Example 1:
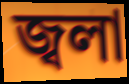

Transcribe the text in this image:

জ্বলা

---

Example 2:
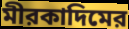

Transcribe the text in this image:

মীরকাদিমের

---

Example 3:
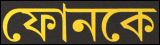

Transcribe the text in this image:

ফোনকে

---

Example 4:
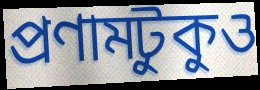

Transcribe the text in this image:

প্রণামটুকুও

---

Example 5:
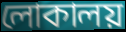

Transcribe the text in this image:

লোকালয়